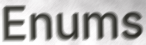
Enums